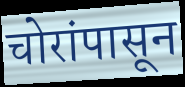
चोरांपासून